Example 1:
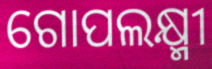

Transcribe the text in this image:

ଗୋପଲକ୍ଷ୍ମୀ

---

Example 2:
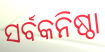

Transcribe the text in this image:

ସର୍ବକନିଷ୍ଠା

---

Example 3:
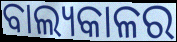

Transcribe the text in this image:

ବାଲ୍ୟକାଳର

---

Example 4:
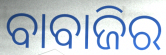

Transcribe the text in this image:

ବାବାଜିର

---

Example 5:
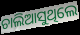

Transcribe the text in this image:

ଚାଲିଆସୁଥିଲେ